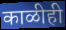
काळीही